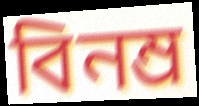
বিনম্ৰ